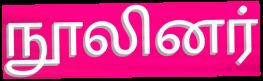
நூலினர்